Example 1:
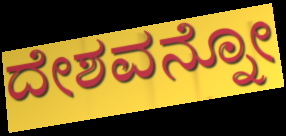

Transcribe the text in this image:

ದೇಶವನ್ನೋ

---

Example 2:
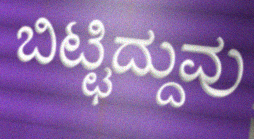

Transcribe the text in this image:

ಬಿಟ್ಟಿದ್ದುವು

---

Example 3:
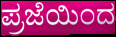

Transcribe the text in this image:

ಪ್ರಜೆಯಿಂದ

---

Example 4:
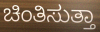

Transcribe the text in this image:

ಚಿಂತಿಸುತ್ತಾ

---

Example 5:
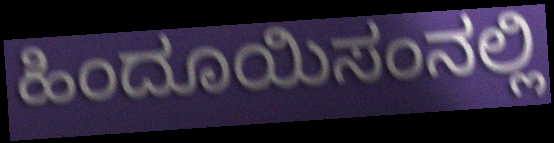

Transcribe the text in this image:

ಹಿಂದೂಯಿಸಂನಲ್ಲಿ